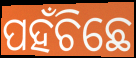
ପହଁଚିଛେ